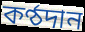
কণ্ঠদান